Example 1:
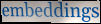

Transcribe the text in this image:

embeddings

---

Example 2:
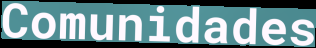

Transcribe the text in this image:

Comunidades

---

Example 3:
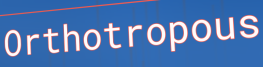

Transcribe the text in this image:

Orthotropous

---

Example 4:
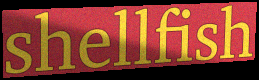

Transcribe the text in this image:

shellfish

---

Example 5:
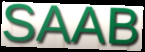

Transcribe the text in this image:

SAAB